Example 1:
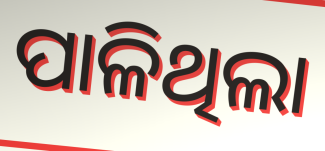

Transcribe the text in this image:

ପାଳିଥିଲା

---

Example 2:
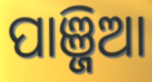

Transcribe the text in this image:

ପାଞ୍ଜିଆ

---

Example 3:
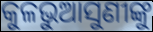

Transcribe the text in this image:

କୁଳଭୁଆସୁଣୀଙ୍କୁ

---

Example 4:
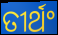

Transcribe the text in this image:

ତୀର୍ଥଂ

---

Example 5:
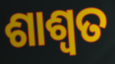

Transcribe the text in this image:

ଶାଶ୍ୱତ